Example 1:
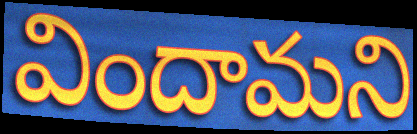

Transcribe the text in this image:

విందామని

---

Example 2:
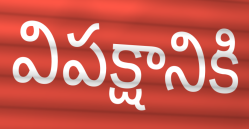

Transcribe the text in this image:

విపక్షానికి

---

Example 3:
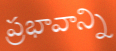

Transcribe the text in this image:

ప్రభావాన్ని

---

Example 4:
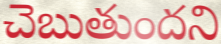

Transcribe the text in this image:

చెబుతుందని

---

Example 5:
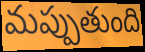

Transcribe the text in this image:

మప్పుతుంది